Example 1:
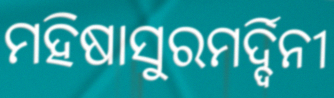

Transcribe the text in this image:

ମହିଷାସୁରମର୍ଦ୍ଦିନୀ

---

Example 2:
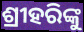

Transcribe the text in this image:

ଶ୍ରୀହରିଙ୍କୁ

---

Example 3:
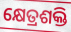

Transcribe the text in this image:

କ୍ଷେତ୍ରଶକ୍ତି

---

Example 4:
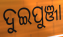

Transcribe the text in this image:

ଦୁଇପୁଞ୍ଜା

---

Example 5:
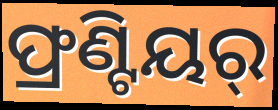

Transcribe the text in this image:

ଫ୍ରଣ୍ଟିୟର୍